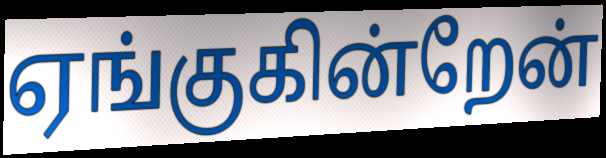
ஏங்குகின்றேன்